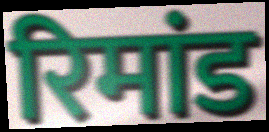
रिमांड